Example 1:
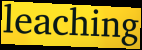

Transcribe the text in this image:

leaching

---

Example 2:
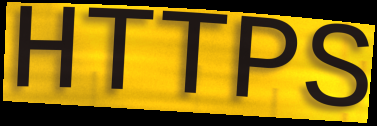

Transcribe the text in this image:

HTTPS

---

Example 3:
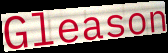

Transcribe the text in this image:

Gleason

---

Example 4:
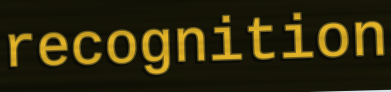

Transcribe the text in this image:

recognition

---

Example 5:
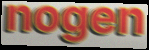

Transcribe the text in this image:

nogen